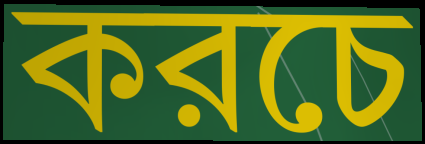
করচে